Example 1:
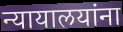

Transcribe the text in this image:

न्यायालयांना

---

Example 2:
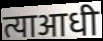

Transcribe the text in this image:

त्याआधी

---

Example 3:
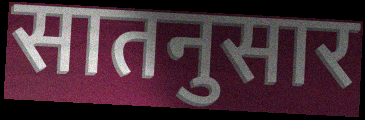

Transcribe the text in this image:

सातनुसार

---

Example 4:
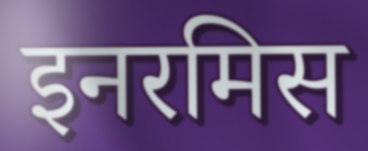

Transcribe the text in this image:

इनरमिस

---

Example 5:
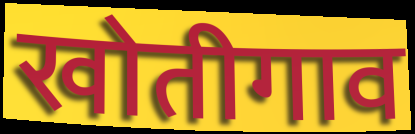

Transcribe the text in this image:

खोतीगाव